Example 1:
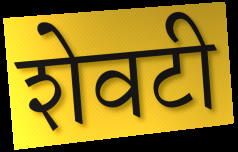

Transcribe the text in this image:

शेवटी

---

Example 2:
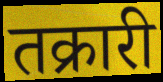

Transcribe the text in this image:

तक्रारी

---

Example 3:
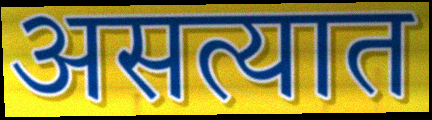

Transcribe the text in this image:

असत्यात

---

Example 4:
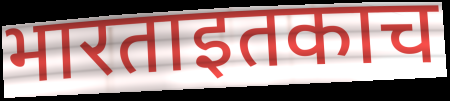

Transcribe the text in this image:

भारताइतकाच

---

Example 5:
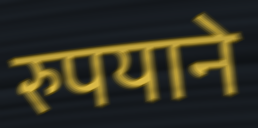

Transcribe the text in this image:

रुपयाने